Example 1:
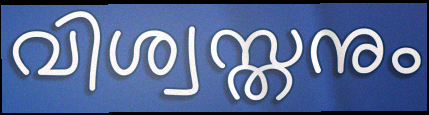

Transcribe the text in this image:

വിശ്വസ്തനും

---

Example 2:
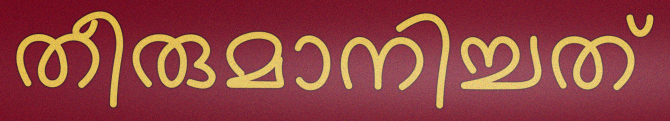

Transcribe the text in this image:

തീരുമാനിച്ചത്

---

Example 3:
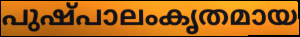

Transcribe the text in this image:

പുഷ്പാലംകൃതമായ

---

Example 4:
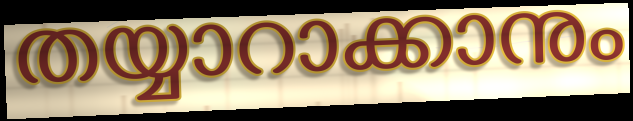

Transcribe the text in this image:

തയ്യാറാക്കാനും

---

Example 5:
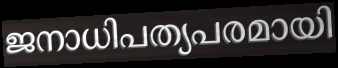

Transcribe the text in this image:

ജനാധിപത്യപരമായി